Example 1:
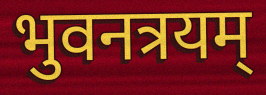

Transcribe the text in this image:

भुवनत्रयम्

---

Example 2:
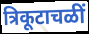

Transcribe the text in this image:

त्रिकूटाचळीं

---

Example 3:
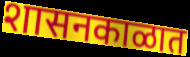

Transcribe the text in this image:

शासनकाळात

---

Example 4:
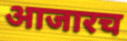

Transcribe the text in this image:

आजारच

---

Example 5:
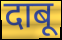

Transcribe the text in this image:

दाबू